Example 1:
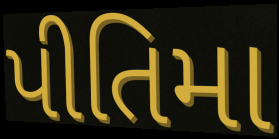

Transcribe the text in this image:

પીતિમા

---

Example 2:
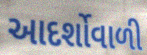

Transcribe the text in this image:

આદર્શોવાળી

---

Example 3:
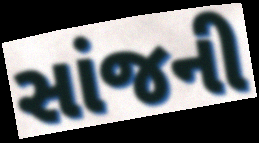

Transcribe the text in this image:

સાંજની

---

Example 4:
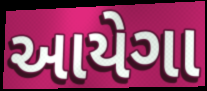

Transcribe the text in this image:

આયેગા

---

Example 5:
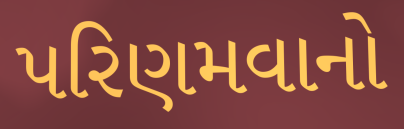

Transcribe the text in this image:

પરિણમવાનો